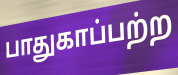
பாதுகாப்பற்ற